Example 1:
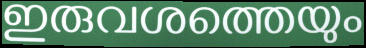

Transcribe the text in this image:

ഇരുവശത്തെയും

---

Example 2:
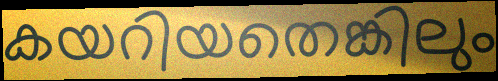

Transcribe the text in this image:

കയറിയതെങ്കിലും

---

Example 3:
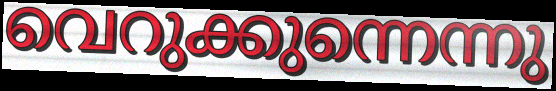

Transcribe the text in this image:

വെറുക്കുന്നെന്നു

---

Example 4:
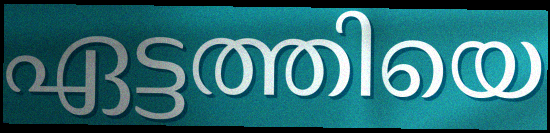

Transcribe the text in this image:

ഏട്ടത്തിയെ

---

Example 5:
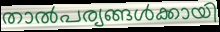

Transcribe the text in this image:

താൽപര്യങ്ങൾക്കായി